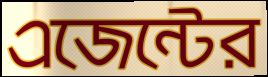
এজেন্টের